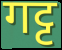
गट्ट